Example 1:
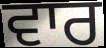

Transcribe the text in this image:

ਵਾਰ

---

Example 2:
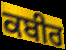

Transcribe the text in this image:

ਕਬੀਰ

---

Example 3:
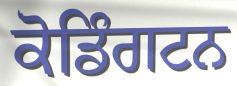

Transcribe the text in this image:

ਕੋਡਿੰਗਟਨ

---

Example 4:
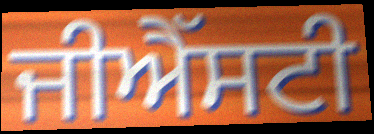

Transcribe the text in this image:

ਜੀਐੱਸਟੀ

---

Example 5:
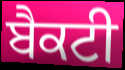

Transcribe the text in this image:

ਬੈਕਟੀ